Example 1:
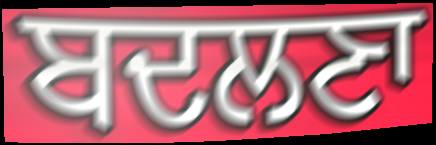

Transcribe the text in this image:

ਬਦਲਣਾ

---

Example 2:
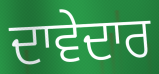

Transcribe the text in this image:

ਦਾਵੇਦਾਰ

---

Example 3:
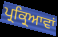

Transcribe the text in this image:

ਪ੍ਰਕ੍ਰਿਆਵਾਂ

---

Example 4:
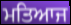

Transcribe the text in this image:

ਮਤਿਆਜ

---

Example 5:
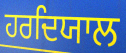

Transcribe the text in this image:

ਹਰਦਿਯਾਲ